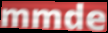
mmde